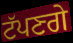
ਟੱਪਣਗੇ